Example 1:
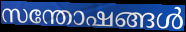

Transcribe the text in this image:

സന്തോഷങ്ങൾ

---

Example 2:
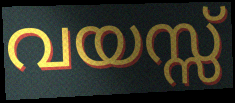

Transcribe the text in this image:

വയസ്സ്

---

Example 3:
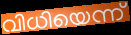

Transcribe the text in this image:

വിധിയെന്ന്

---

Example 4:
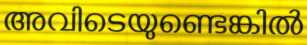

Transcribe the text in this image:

അവിടെയുണ്ടെങ്കിൽ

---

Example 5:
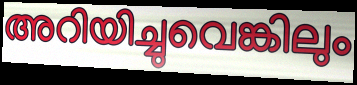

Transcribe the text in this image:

അറിയിച്ചുവെങ്കിലും